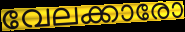
വേലക്കാരോ